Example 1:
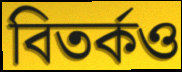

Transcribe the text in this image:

বিতৰ্কও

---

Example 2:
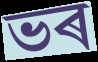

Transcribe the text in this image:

ভৰ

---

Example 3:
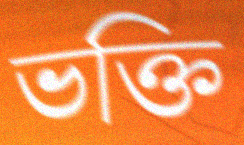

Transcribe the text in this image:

ভক্তি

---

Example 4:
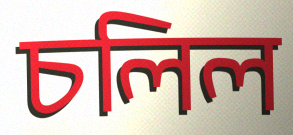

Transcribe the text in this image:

চলিল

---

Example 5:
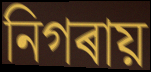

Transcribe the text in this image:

নিগৰায়